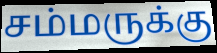
சம்மருக்கு